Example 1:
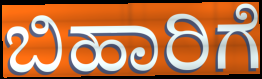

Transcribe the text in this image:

ಬಿಹಾರಿಗೆ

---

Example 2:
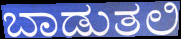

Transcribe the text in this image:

ಬಾಡುತಲಿ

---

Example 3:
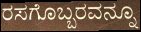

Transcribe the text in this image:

ರಸಗೊಬ್ಬರವನ್ನೂ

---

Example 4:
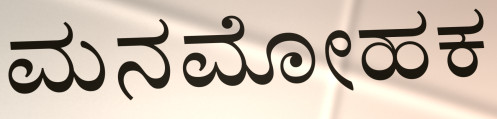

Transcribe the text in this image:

ಮನಮೋಹಕ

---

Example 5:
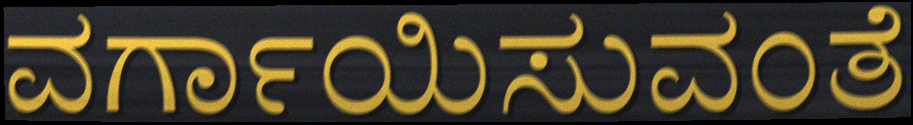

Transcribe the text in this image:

ವರ್ಗಾಯಿಸುವಂತೆ